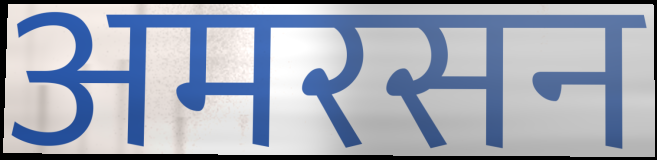
अमरसन